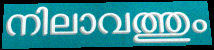
നിലാവത്തും